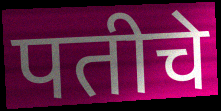
पतीचे